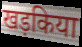
खड़किया